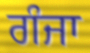
ਗੰਜਾ